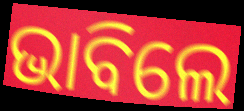
ଭାବିଲେ